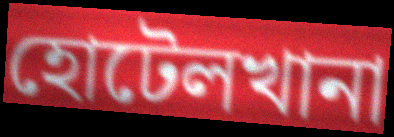
হোটেলখানা